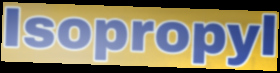
Isopropyl